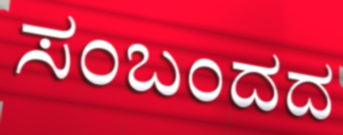
ಸಂಬಂದದ